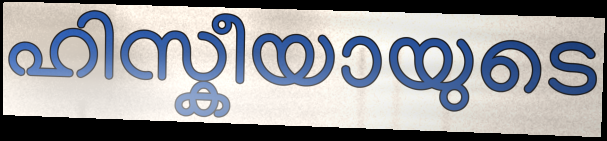
ഹിസ്കീയായുടെ